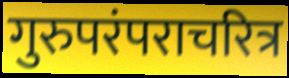
गुरुपरंपराचरित्र